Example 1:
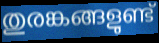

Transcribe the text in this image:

തുരങ്കങ്ങളുണ്ട്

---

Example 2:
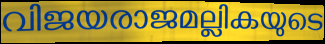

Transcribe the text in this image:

വിജയരാജമല്ലികയുടെ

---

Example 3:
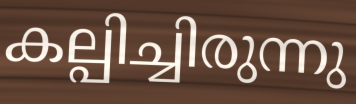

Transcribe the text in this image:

കല്പിച്ചിരുന്നു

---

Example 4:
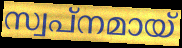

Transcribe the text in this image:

സ്വപ്നമായ്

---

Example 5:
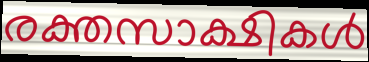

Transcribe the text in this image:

രക്തസാക്ഷികൾ